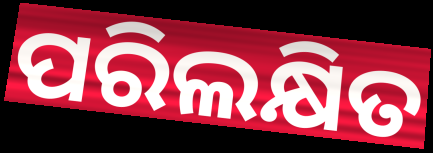
ପରିଲକ୍ଷିତ